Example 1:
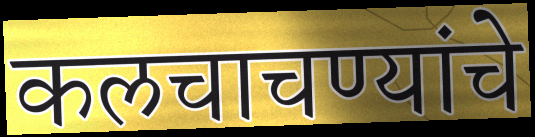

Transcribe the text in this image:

कलचाचण्यांचे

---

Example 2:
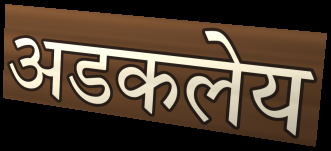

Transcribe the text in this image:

अडकलेय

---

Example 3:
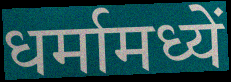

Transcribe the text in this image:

धर्मामध्यें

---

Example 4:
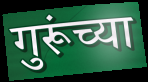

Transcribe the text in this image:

गुरूंच्या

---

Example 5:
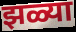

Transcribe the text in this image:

झळ्या